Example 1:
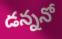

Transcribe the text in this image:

డన్ననో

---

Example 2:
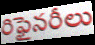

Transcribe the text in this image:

రిఫైనరీలు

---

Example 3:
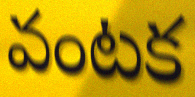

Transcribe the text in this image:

వంటక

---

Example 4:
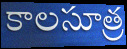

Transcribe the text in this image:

కాలసూత్ర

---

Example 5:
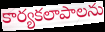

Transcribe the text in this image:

కార్యకలాపాలను